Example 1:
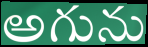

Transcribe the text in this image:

అగును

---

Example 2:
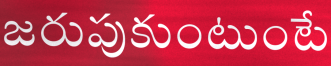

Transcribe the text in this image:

జరుపుకుంటుంటే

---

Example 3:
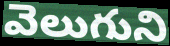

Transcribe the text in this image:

వెలుగుని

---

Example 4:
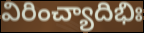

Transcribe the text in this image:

విరించ్యాదిభిః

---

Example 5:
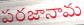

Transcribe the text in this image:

పరజానామ